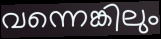
വന്നെങ്കിലും